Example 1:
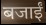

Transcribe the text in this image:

बजाईं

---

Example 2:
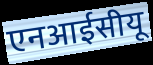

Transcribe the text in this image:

एनआईसीयू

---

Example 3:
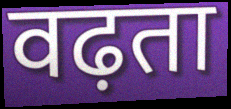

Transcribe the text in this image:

वढ़ता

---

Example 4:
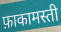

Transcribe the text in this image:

फ़ाकामस्ती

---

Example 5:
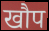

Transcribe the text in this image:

खौप